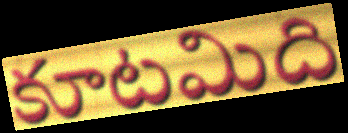
కూటమిది